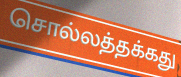
சொல்லத்தக்கது